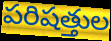
పరిషత్తుల